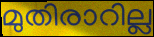
മുതിരാറില്ല